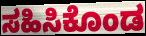
ಸಹಿಸಿಕೊಂಡ